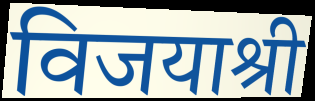
विजयाश्री